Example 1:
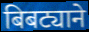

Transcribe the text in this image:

बिबट्याने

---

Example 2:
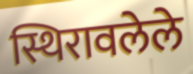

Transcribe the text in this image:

स्थिरावलेले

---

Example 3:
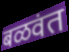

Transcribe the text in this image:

बळवंत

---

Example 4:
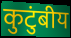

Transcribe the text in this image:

कुटुंबीय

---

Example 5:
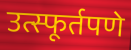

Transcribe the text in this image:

उत्स्फूर्तपणे